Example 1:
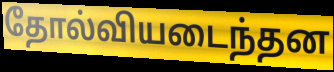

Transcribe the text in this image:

தோல்வியடைந்தன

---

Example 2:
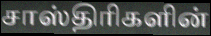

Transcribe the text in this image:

சாஸ்திரிகளின்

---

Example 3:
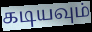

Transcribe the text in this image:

கடியவும்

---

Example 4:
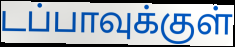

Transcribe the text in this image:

டப்பாவுக்குள்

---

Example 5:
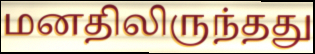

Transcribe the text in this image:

மனதிலிருந்தது